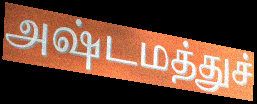
அஷ்டமத்துச்